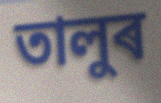
তালুৰ